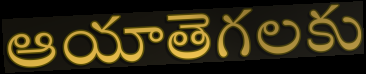
ఆయాతెగలకు